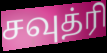
சவுத்ரி